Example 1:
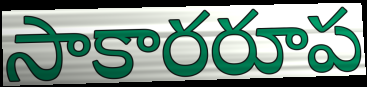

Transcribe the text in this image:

సాకారరూప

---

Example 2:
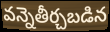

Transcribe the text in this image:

వన్నెతీర్చబడిన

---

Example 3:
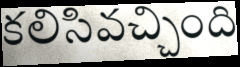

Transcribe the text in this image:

కలిసివచ్చింది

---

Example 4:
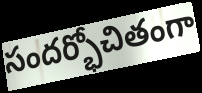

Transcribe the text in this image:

సందర్భోచితంగా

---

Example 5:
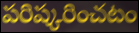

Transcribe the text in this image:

పరిష్కరించటం